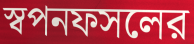
স্বপনফসলের